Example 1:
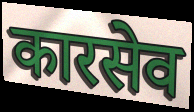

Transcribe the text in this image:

कारसेव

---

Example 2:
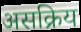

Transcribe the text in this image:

असक्रिय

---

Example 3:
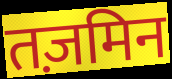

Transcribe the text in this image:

तज़मिन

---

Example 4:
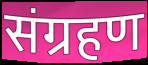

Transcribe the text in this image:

संग्रहण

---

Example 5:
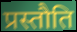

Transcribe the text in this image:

प्रस्तौति